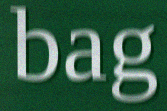
bag